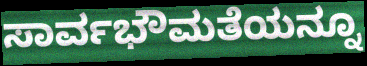
ಸಾರ್ವಭೌಮತೆಯನ್ನೂ